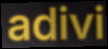
adivi